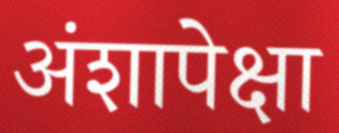
अंशापेक्षा